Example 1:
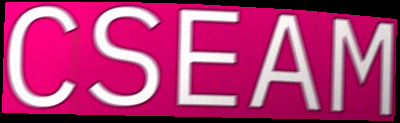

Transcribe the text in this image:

CSEAM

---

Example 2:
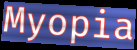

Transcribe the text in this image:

Myopia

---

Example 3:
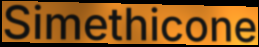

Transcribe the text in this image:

Simethicone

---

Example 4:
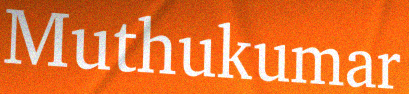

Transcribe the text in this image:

Muthukumar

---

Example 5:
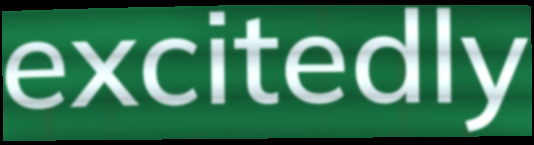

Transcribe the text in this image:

excitedly